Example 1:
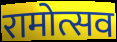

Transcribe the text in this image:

रामोत्सव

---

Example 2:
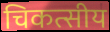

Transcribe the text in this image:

चिकत्सीय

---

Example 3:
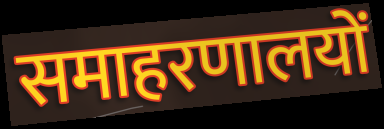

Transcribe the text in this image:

समाहरणालयों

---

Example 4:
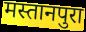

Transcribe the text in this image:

मस्तानपुरा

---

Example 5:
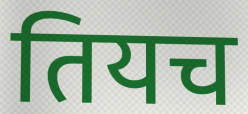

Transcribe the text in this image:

तियच